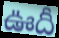
ఊదీ